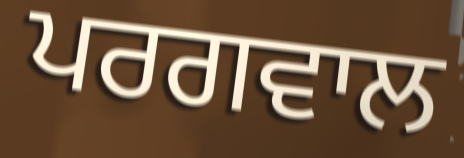
ਪਰਗਵਾਲ